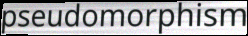
pseudomorphism